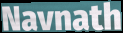
Navnath